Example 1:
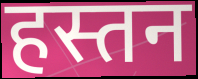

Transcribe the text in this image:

हस्तन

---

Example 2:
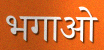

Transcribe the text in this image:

भगाओ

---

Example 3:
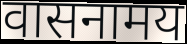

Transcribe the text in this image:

वासनामय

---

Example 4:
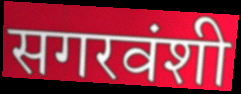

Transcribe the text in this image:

सगरवंशी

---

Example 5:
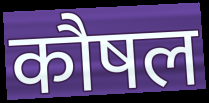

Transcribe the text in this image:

कौषल